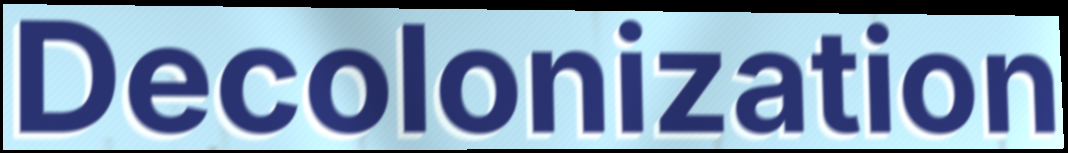
Decolonization